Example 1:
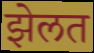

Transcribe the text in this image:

झेलत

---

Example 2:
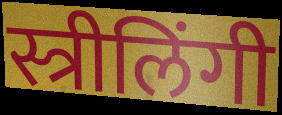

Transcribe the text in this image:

स्त्रीलिंगी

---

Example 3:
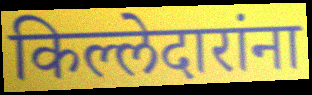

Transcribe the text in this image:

किल्लेदारांना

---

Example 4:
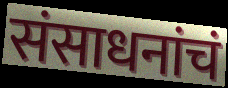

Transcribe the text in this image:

संसाधनांचं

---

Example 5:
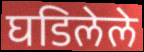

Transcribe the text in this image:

घडिलेले